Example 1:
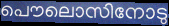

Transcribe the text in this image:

പൌലൊസിനോടു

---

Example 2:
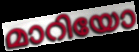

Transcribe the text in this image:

മാറിയോ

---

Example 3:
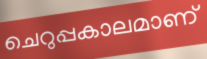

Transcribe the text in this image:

ചെറുപ്പകാലമാണ്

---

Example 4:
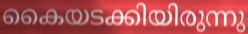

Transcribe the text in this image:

കൈയടക്കിയിരുന്നു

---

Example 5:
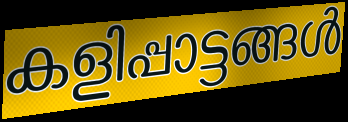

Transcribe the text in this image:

കളിപ്പാട്ടങ്ങൾ